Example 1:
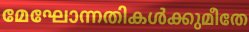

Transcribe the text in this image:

മേഘോന്നതികൾക്കുമീതേ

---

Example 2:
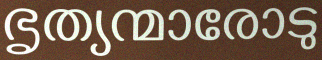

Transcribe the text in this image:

ഭൃത്യന്മാരോടു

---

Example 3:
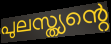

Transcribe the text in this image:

പുലസ്ത്യന്റെ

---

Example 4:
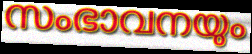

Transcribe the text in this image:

സംഭാവനയും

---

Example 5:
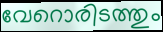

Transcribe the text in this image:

വേറൊരിടത്തും